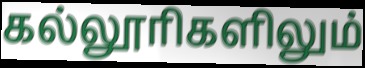
கல்லூரிகளிலும்